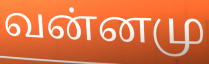
வன்னமு